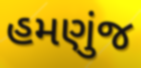
હમણુંજ